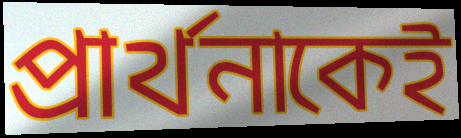
প্রার্থনাকেই